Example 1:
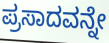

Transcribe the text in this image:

ಪ್ರಸಾದವನ್ನೇ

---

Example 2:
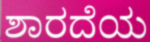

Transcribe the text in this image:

ಶಾರದೆಯ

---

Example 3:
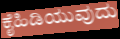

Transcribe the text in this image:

ಕೈಹಿಡಿಯುವುದು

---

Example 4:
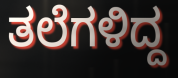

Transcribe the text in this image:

ತಲೆಗಳಿದ್ದ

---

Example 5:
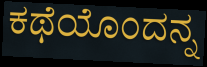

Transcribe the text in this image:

ಕಥೆಯೊಂದನ್ನ